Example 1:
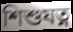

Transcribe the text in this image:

শিশুযত্ন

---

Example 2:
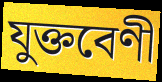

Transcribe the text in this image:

যুক্তবেণী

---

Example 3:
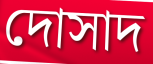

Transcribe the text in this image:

দোসাদ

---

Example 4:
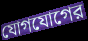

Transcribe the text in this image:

যোগযোগের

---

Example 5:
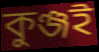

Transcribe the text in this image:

কুঞ্জই